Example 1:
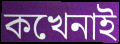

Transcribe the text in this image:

কখেনাই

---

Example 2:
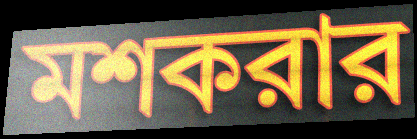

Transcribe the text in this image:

মশকরার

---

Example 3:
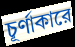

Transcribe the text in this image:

চূর্ণাকারে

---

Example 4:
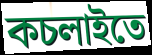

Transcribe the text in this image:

কচলাইতে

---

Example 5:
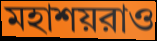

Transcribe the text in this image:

মহাশয়রাও